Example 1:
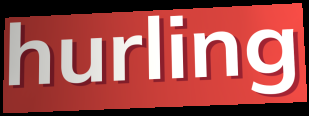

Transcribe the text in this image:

hurling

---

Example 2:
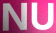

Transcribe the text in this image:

NU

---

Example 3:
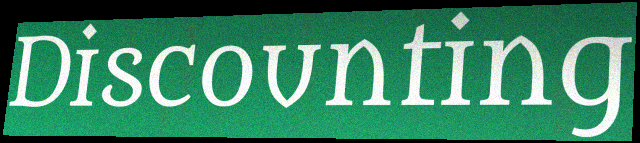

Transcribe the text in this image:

Discounting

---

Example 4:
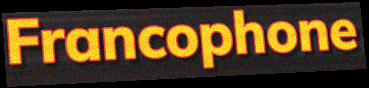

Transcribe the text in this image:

Francophone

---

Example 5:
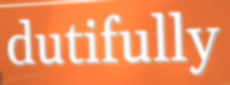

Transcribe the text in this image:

dutifully